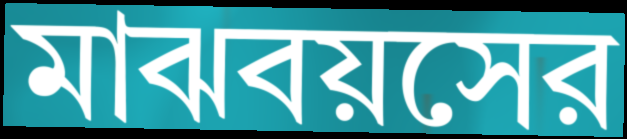
মাঝবয়সের